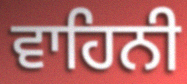
ਵਾਹਿਨੀ